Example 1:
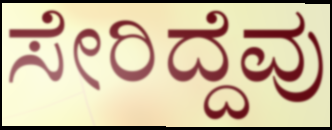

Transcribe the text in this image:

ಸೇರಿದ್ದೆವು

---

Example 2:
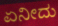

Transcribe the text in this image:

ಏನೀದು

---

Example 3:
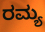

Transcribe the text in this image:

ರಮ್ಯ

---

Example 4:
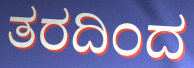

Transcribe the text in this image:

ತರದಿಂದ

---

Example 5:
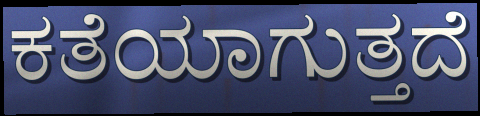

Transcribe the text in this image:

ಕತೆಯಾಗುತ್ತದೆ